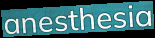
anesthesia